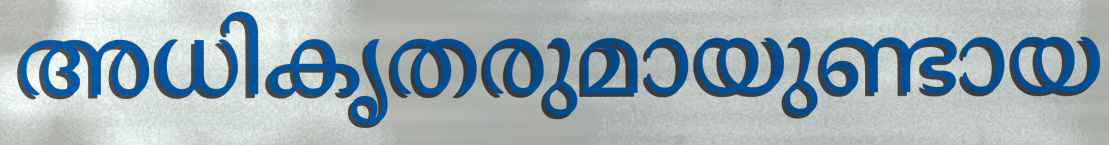
അധികൃതരുമായുണ്ടായ